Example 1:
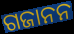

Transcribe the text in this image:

ଗଜାନନ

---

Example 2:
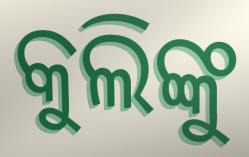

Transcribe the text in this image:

କୁଲିଙ୍କୁ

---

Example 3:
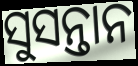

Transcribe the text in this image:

ସୁସନ୍ତାନ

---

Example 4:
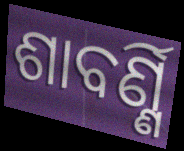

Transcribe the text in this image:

ଶାବର୍ଣ୍ଣି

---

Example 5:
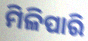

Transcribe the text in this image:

ମିଳିପାରି